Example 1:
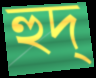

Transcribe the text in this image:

হুদ্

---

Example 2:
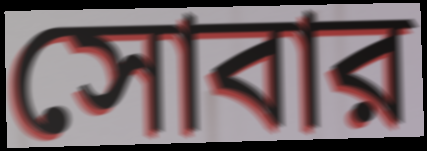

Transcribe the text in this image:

সোবার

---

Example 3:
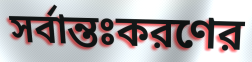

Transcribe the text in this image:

সর্বান্তঃকরণের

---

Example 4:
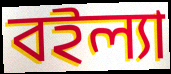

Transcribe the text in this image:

বইল্যা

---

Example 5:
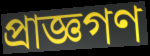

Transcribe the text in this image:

প্রাজ্ঞগণ